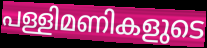
പള്ളിമണികളുടെ